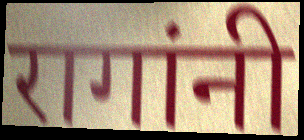
रागांनी